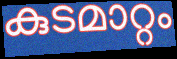
കുടമാറ്റം